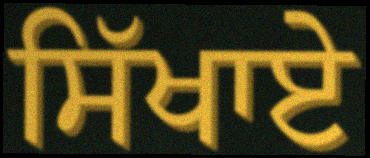
ਸਿੱਖਾਏ